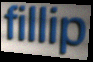
fillip